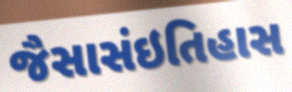
જૈસાસંઇતિહાસ